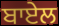
ਬਾਏਲ